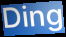
Ding